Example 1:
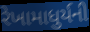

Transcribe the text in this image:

રેખામાધુર્યની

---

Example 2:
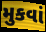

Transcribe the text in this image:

મુકવાં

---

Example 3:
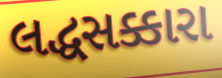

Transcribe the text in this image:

લદ્ધસક્કારા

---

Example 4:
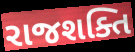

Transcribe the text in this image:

રાજશક્તિ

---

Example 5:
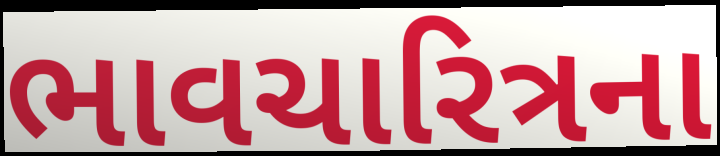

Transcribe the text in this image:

ભાવચારિત્રના